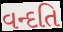
વન્દતિ